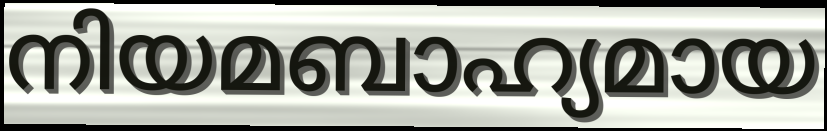
നിയമബാഹ്യമായ